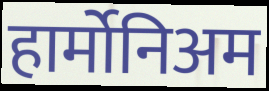
हार्मोनिअम